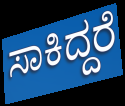
ಸಾಕಿದ್ದರೆ